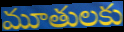
మూతులకు